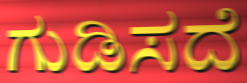
ಗುಡಿಸದೆ